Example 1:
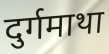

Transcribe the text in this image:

दुर्गमाथा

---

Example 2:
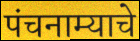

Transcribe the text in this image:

पंचनाम्याचे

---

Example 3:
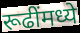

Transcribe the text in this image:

रूढींमध्ये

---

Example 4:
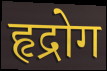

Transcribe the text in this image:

हृद्रोग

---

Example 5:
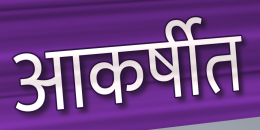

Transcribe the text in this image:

आकर्षीत